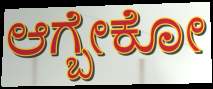
ಆಗ್ಬೇಕೋ